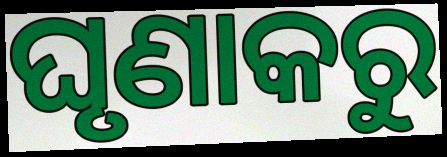
ଘୃଣାକରୁ